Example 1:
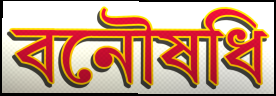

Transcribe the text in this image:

বনৌষধি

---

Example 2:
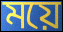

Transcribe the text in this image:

ময়ে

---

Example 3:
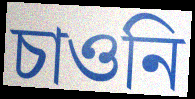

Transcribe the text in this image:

চাওনি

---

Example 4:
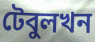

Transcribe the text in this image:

টেবুলখন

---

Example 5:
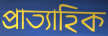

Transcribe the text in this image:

প্ৰাত্যাহিক